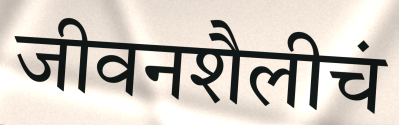
जीवनशैलीचं